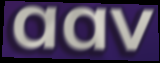
aav